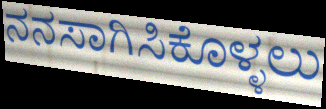
ನನಸಾಗಿಸಿಕೊಳ್ಳಲು